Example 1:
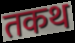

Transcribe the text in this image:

तकथ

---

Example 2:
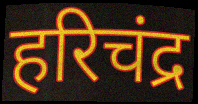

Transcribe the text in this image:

हरिचंद्र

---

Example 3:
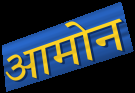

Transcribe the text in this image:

आमोन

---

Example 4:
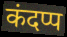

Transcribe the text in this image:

कंदप्प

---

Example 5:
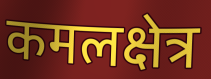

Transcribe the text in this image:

कमलक्षेत्र